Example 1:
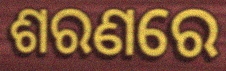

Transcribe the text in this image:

ଶରଣରେ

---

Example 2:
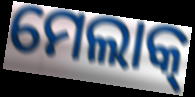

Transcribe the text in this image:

ମେଲାକ୍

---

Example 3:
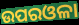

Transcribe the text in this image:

ଉପରଓଳା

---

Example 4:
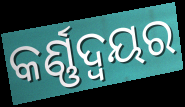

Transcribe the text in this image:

କର୍ଣ୍ଣଦ୍ୱୟର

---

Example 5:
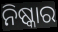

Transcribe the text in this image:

ନିଷ୍କାର